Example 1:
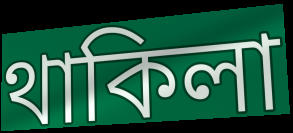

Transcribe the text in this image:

থাকিলা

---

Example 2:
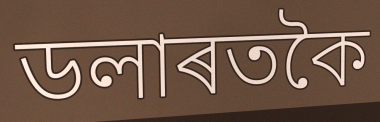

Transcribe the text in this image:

ডলাৰতকৈ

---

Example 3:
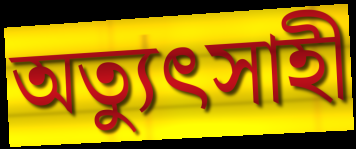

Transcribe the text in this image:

অত্যুৎসাহী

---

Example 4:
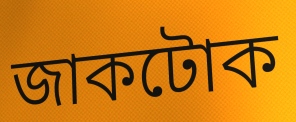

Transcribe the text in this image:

জাকটোক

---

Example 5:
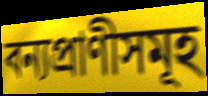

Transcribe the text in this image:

বন্যপ্ৰাণীসমূহ